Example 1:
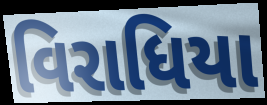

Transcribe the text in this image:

વિરાધિયા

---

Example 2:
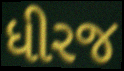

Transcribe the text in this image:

ધીરજ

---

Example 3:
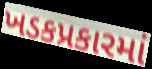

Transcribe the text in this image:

ખડકપ્રકારમાં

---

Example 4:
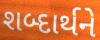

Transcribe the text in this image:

શબ્દાર્થને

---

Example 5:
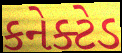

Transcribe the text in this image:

કનેક્ટેડ